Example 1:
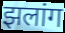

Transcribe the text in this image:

झलांग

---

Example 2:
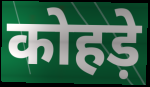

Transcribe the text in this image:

कोहड़े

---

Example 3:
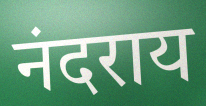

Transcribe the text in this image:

नंदराय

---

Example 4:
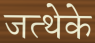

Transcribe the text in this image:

जत्थेके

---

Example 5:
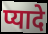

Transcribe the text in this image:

प्यादे